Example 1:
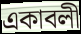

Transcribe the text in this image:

একাবলী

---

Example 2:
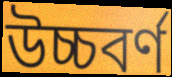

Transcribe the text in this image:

উচ্চবর্ণ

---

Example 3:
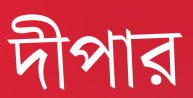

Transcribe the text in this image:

দীপার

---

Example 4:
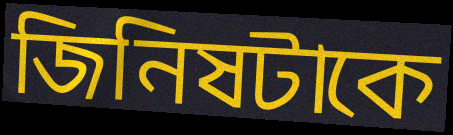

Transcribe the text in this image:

জিনিষটাকে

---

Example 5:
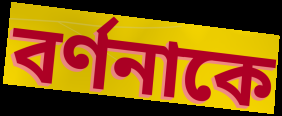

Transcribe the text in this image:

বর্ণনাকে